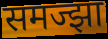
समज्झा